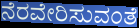
ನೆರವೇರಿಸುವಂತೆ